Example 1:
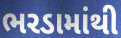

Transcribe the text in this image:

ભરડામાંથી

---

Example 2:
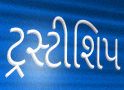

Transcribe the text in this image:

ટ્રસ્ટીશિપ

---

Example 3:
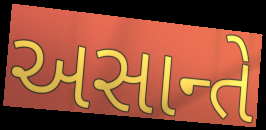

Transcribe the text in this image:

અસાન્તે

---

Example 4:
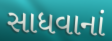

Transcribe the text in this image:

સાધવાનાં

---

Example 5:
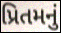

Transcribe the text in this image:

પ્રિતમનું